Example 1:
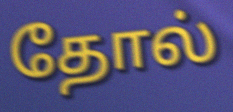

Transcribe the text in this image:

தோல்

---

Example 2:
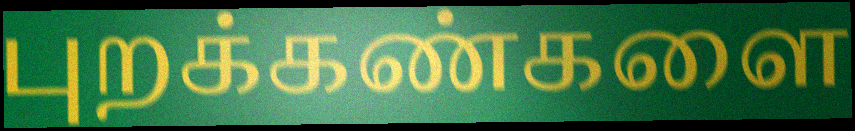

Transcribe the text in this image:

புறக்கண்களை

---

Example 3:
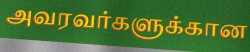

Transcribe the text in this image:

அவரவர்களுக்கான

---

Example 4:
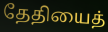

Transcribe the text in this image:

தேதியைத்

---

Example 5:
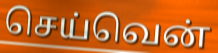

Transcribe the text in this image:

செய்வென்